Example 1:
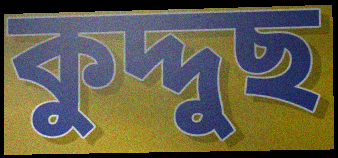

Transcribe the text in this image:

কুদ্দুছ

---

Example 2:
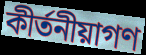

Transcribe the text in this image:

কীর্তনীয়াগণ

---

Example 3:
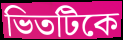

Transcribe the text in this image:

ভিতটিকে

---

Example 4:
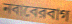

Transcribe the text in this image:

নবাবেরবাগ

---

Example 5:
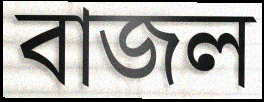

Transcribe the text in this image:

বাজল